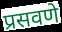
प्रसवणे